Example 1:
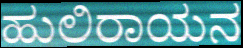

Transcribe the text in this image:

ಹುಲಿರಾಯನ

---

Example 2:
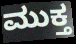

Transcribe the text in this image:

ಮುಕ್ತ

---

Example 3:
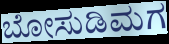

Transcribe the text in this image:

ಬೋಸುಡಿಮಗ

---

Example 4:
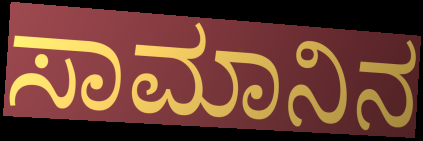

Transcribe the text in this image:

ಸಾಮಾನಿನ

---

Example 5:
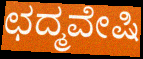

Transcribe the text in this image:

ಛದ್ಮವೇಷಿ